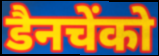
डैनचेंको